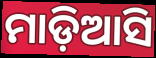
ମାଡ଼ିଆସି